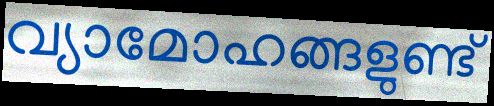
വ്യാമോഹങ്ങളുണ്ട്